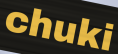
chuki